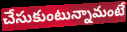
చేసుకుంటున్నామంటే